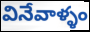
వినేవాళ్ళం